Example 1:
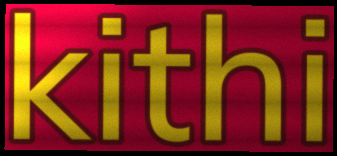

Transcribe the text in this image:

kithi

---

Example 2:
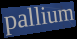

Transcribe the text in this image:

pallium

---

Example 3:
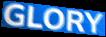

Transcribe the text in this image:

GLORY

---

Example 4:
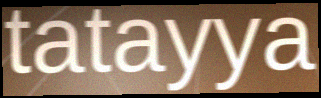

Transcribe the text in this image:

tatayya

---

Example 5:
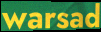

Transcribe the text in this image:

warsad